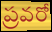
ప్రవరో